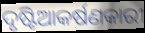
ଦୃଷ୍ଟିଆକର୍ଷଣକାରୀ